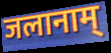
जलानाम्